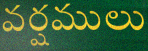
వర్షములు